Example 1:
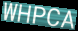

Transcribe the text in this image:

WHPCA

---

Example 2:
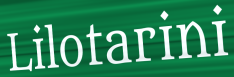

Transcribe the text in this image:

Lilotarini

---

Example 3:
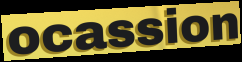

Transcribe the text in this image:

ocassion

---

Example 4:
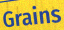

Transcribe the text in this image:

Grains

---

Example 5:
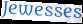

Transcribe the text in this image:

Jewesses